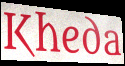
Kheda